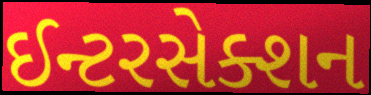
ઈન્ટરસેક્શન